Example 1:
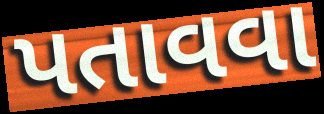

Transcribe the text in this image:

પતાવવા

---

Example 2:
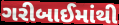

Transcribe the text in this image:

ગરીબાઈમાંથી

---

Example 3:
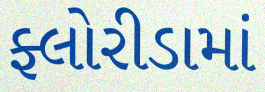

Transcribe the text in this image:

ફ્લોરીડામાં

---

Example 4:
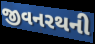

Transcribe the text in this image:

જીવનરથની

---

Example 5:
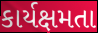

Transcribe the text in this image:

કાર્યક્ષમતા